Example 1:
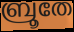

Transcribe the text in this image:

ബ്രൂതേ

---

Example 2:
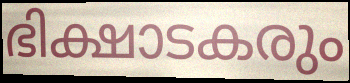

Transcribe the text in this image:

ഭിക്ഷാടകരും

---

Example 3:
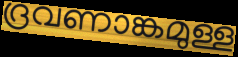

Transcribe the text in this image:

ദ്രവണാങ്കമുള്ള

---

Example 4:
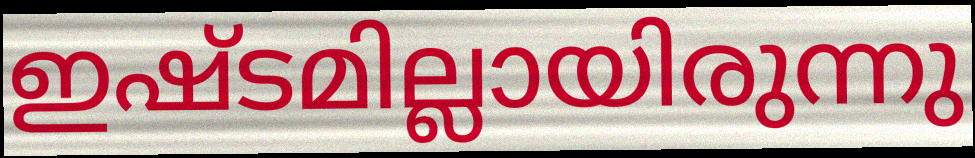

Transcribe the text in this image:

ഇഷ്ടമില്ലായിരുന്നു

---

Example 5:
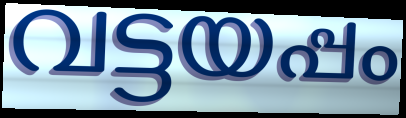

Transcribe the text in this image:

വട്ടയപ്പം